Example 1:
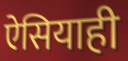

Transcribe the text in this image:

ऐसियाही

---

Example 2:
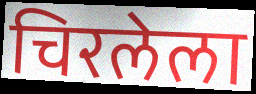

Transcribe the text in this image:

चिरलेला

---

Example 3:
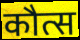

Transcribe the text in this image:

कौत्स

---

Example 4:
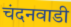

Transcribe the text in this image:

चंदनवाडी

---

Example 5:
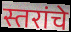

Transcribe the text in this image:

स्तरांचे